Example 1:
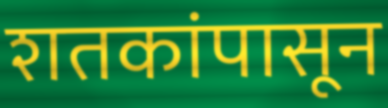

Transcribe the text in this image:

शतकांपासून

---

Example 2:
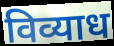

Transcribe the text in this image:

विव्याध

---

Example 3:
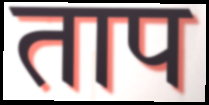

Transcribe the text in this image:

ताप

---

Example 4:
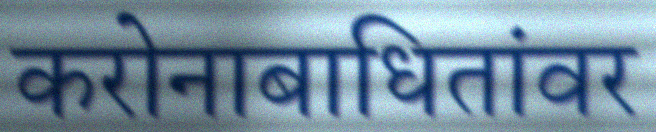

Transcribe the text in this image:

करोनाबाधितांवर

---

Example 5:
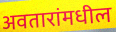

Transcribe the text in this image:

अवतारांमधील